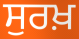
ਸੁਰਖ਼